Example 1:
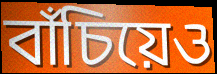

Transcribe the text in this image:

বাঁচিয়েও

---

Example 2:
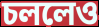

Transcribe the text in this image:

চললেও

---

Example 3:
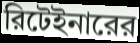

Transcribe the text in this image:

রিটেইনারের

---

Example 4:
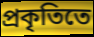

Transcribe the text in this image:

প্রকৃতিতে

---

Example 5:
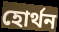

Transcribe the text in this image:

হোর্থন